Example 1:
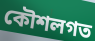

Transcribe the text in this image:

কৌশলগত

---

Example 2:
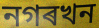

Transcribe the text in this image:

নগৰখন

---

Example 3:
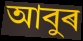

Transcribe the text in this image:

আবুৰ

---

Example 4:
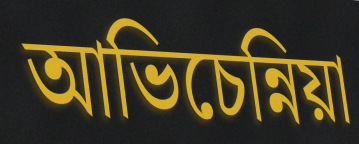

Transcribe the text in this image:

আভিচেন্নিয়া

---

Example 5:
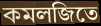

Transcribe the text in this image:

কমলজিতে